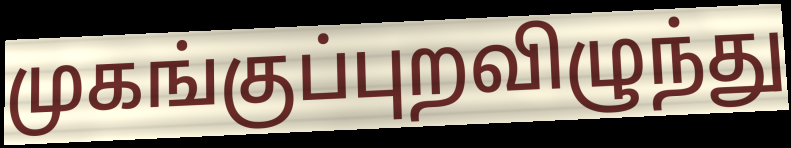
முகங்குப்புறவிழுந்து